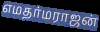
எமதர்மராஜன்